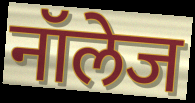
नॉलेज